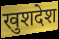
खुशदेश